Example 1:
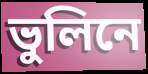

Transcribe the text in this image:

ভুলিনে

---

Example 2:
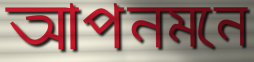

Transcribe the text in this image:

আপনমনে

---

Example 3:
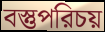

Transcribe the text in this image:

বস্তুপরিচয়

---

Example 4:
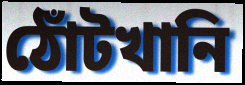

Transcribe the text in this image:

ঠোঁটখানি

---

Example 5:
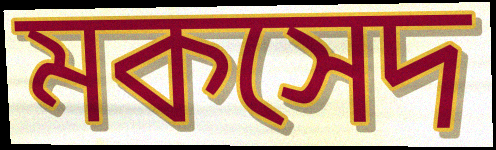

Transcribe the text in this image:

মকসেদ